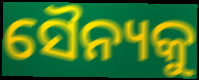
ସୈନ୍ୟକୁ